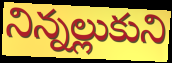
నిన్నల్లుకుని